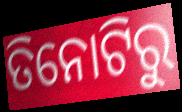
ତିନୋଟିରୁ